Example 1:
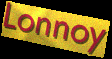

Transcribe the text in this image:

Lonnoy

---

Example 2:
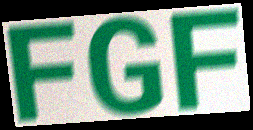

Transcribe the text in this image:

FGF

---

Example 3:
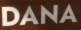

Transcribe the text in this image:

DANA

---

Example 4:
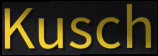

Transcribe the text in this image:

Kusch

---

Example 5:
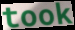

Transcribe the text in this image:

took